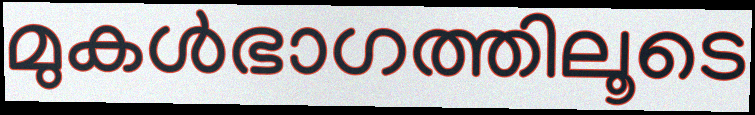
മുകൾഭാഗത്തിലൂടെ